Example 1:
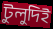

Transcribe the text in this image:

টুলুদিই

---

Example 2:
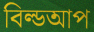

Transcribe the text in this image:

বিল্ডআপ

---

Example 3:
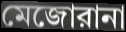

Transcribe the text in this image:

মেজোরানা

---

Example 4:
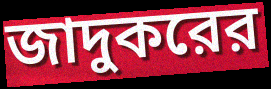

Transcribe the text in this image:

জাদুকরের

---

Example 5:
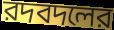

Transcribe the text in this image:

রদবদলের